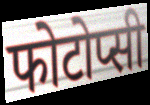
फोटोप्सी